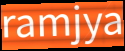
ramjya